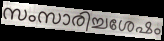
സംസാരിച്ചശേഷം